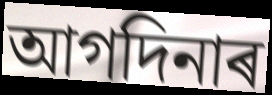
আগদিনাৰ